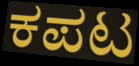
ಕಪಟ